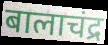
बालाचंद्र